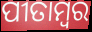
ପୀତାମ୍ବର